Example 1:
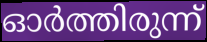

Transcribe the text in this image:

ഓർത്തിരുന്ന്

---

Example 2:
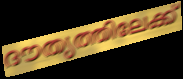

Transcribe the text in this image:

ദൗത്യത്തിലേക്ക്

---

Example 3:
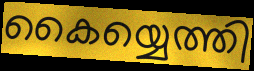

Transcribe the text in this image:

കൈയ്യെത്തി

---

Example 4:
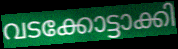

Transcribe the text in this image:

വടക്കോട്ടാക്കി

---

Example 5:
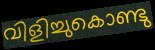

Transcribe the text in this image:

വിളിച്ചുകൊണ്ടു